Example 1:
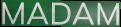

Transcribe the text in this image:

MADAM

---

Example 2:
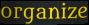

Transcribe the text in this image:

organize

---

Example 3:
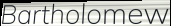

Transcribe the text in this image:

Bartholomew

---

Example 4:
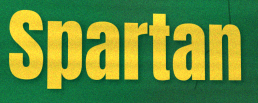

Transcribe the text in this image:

Spartan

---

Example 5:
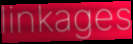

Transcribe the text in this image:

linkages